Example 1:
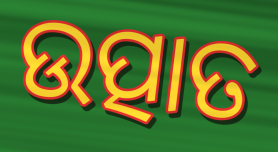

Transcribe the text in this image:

ଉତ୍ପାତ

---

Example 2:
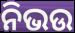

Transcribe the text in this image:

ନିଭଉ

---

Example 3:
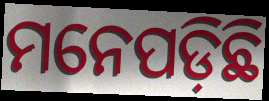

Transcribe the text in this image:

ମନେପଡ଼ିଛି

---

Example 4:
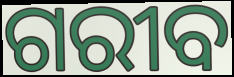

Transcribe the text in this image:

ଗରୀବ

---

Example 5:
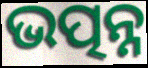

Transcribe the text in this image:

ଭତ୍ପନ୍ନ